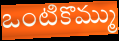
ఒంటికొమ్ము